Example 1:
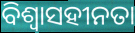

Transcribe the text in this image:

ବିଶ୍ୱାସହୀନତା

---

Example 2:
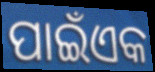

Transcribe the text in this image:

ପାଇଁଏକ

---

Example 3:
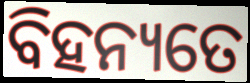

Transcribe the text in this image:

ବିହନ୍ୟତେ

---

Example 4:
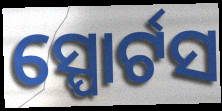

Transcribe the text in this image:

ସ୍ପୋର୍ଟସ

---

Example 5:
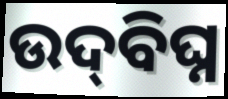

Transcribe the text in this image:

ଉଦ୍‌ବିଘ୍ନ